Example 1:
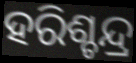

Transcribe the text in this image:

ହରିଶ୍ଚନ୍ଦ୍ର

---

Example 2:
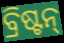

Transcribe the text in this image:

ବ୍ରିଷ୍ଟନ୍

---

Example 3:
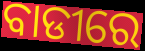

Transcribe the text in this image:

ବାଡୀରେ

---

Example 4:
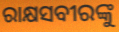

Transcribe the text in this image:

ରାକ୍ଷସବୀରଙ୍କୁ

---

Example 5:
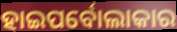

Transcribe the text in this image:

ହାଇପର୍ବୋଲାକାର